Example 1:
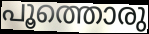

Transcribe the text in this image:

പൂത്തൊരു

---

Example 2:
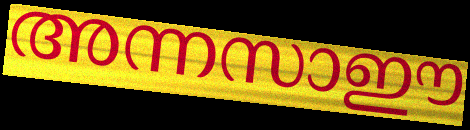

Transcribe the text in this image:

അന്നസാഈ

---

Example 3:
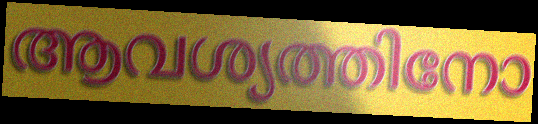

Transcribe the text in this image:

ആവശ്യത്തിനോ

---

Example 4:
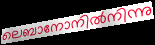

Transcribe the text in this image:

ലെബാനോനിൽനിന്നു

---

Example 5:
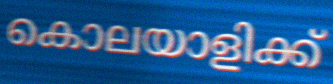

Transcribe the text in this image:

കൊലയാളിക്ക്